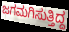
ಜಗಮಗಿಸುತ್ತಿದ್ದ